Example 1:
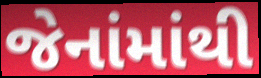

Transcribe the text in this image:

જેનાંમાંથી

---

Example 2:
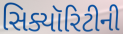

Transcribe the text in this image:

સિક્યૉરિટીની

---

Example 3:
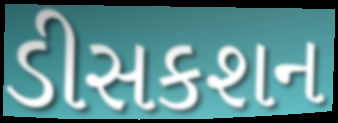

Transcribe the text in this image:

ડીસકશન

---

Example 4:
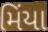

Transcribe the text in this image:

મિંયા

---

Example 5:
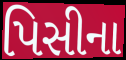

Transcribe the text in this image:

પિસીના